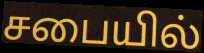
சபையில்